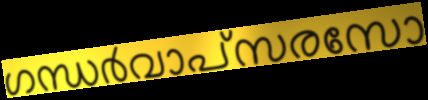
ഗന്ധർവാപ്സരസോ